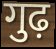
गुढ़